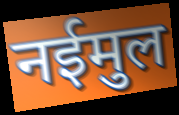
नईमुल